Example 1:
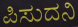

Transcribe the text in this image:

ಪಿಸುದನಿ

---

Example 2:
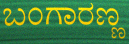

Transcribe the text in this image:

ಬಂಗಾರಣ್ಣ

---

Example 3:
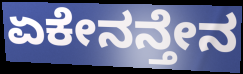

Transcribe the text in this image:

ಏಕೇನನ್ತೇನ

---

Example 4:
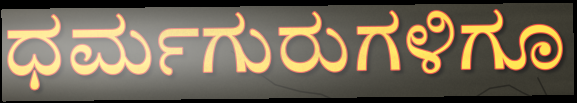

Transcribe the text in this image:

ಧರ್ಮಗುರುಗಳಿಗೂ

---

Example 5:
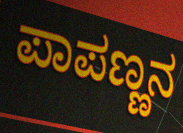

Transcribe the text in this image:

ಪಾಪಣ್ಣನ